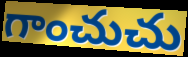
గాంచుచు